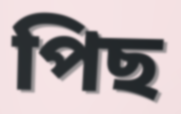
পিছ